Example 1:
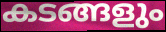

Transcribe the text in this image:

കടങ്ങളും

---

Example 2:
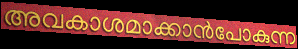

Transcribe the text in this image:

അവകാശമാക്കാൻപോകുന്ന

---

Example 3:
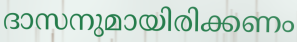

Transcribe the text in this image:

ദാസനുമായിരിക്കണം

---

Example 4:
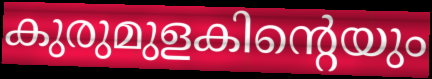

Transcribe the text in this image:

കുരുമുളകിന്റെയും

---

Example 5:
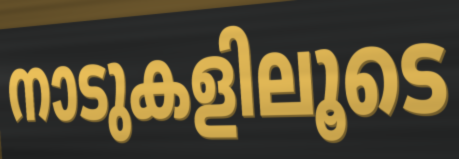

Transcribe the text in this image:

നാടുകളിലൂടെ